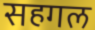
सहगल